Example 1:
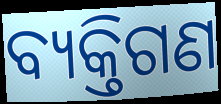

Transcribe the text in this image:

ବ୍ଯକ୍ତିଗଣ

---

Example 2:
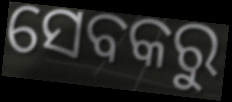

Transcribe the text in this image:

ସେବକରୁ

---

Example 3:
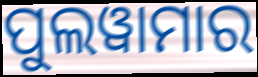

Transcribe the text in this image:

ପୁଲୱାମାର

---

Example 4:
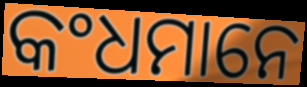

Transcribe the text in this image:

କଂଧମାନେ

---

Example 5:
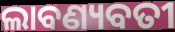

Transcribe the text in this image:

ଲାବଣ୍ୟବତୀ